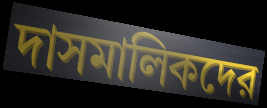
দাসমালিকদের